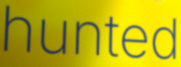
hunted